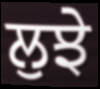
ਲੁਝੇ